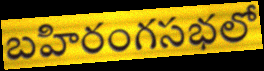
బహిరంగసభలో